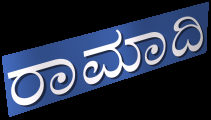
ರಾಮಾದಿ